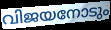
വിജയനോടും